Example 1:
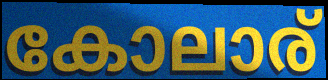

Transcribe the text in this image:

കോലാര്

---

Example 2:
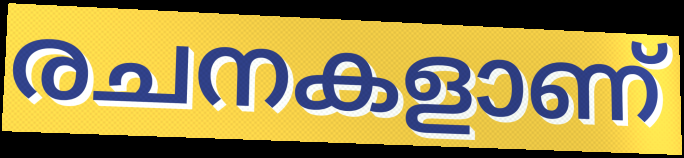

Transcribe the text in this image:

രചനകളാണ്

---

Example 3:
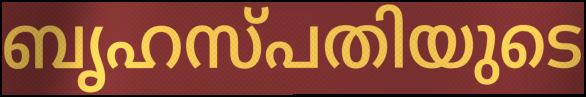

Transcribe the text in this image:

ബൃഹസ്പതിയുടെ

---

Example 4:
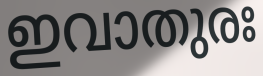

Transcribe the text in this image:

ഇവാതുരഃ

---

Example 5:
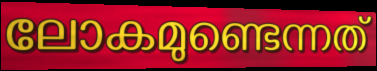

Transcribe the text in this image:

ലോകമുണ്ടെന്നത്